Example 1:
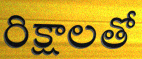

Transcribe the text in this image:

రిక్షాలతో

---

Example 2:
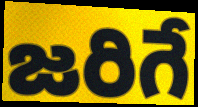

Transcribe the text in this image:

జరిగే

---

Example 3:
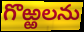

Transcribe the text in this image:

గొఱ్ఱలను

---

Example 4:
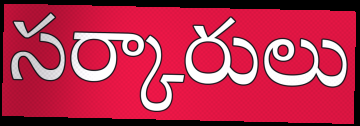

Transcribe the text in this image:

సర్కారులు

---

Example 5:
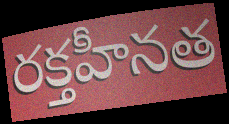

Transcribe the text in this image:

రక్తహీనత